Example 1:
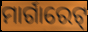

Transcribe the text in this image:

ମାର୍ଗାରେଟ୍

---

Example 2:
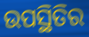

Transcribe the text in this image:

ଉପସ୍ଥିତିର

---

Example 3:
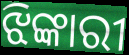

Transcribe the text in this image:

ଝିଙ୍କାରୀ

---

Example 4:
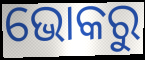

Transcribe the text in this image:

ଭୋକରୁ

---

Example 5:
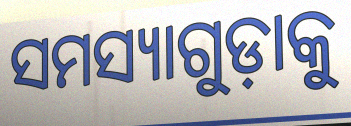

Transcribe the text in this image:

ସମସ୍ୟାଗୁଡ଼ାକୁ